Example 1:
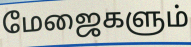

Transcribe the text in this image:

மேஜைகளும்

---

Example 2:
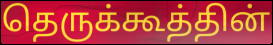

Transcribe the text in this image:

தெருக்கூத்தின்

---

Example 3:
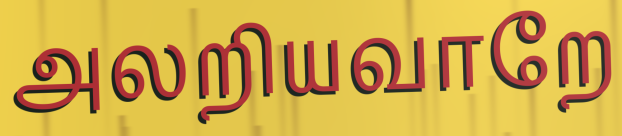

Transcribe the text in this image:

அலறியவாறே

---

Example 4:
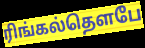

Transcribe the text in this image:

ரிங்கல்தௌபே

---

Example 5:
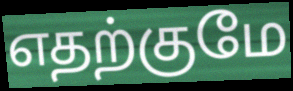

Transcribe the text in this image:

எதற்குமே